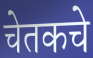
चेतकचे